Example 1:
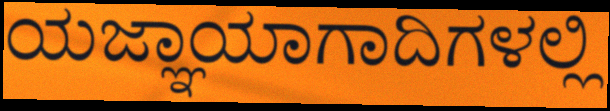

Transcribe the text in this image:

ಯಜ್ಞಾಯಾಗಾದಿಗಳಲ್ಲಿ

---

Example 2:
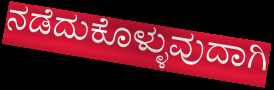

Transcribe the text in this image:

ನಡೆದುಕೊಳ್ಳುವುದಾಗಿ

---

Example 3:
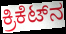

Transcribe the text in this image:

ಕ್ರಿಕೆಟ್‌ನ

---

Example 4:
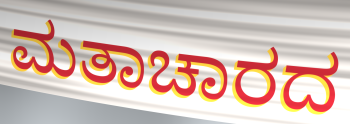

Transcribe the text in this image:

ಮತಾಚಾರದ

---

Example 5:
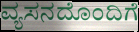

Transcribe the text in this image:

ವ್ಯಸನದೊಂದಿಗೆ